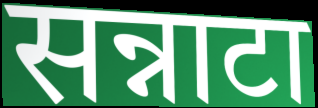
सन्नाटा